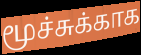
மூச்சுக்காக